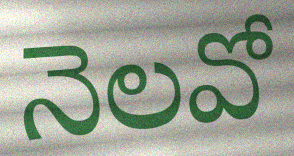
నెలవో